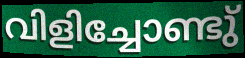
വിളിച്ചോണ്ടു്